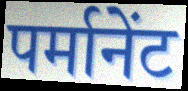
पर्मानेंट